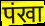
पंखा